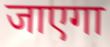
जाएगा